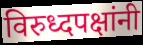
विरुध्दपक्षांनी